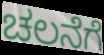
ಚಲನೆಗೆ